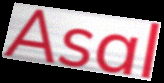
Asal